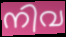
നിവ